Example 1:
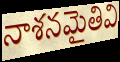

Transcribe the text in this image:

నాశనమైతివి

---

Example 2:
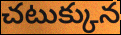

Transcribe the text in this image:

చటుక్కున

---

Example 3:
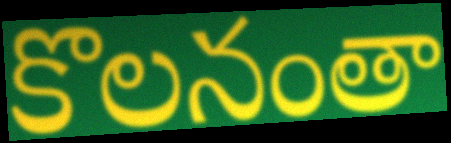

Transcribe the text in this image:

కొలనంతా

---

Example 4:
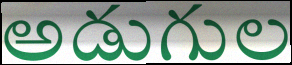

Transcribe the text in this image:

అడుగుల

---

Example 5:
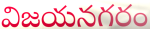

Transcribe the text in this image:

విజయనగరం